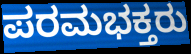
ಪರಮಭಕ್ತರು